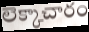
లెక్కాచారం